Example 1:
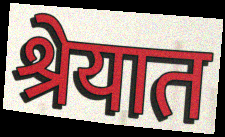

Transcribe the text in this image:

श्रेयात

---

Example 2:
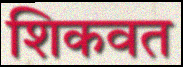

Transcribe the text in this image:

शिकवत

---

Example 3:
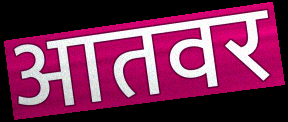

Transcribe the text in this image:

आतवर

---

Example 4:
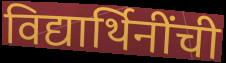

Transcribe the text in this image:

विद्यार्थिनींची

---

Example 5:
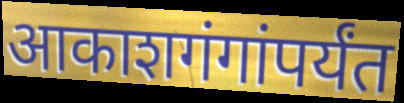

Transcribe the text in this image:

आकाशगंगांपर्यंत